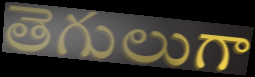
తెగులుగా